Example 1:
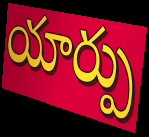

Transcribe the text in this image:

యార్పు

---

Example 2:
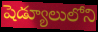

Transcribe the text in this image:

షెడ్యూలులోని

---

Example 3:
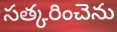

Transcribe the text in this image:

సత్కరించెను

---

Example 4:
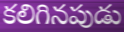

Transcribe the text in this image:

కలిగినపుడు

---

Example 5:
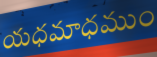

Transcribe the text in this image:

యధమాధముం